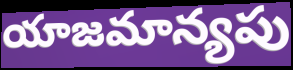
యాజమాన్యపు